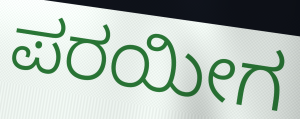
ಪರಯೀಗ